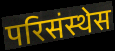
परिसंस्थेस